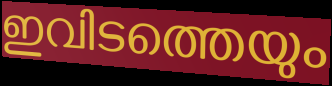
ഇവിടത്തെയും